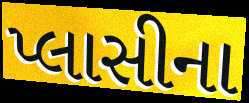
પ્લાસીના